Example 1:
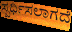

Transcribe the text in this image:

ಸ್ಪರ್ಧಿಸಲಾಗದೆ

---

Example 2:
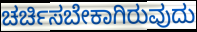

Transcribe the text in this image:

ಚರ್ಚಿಸಬೇಕಾಗಿರುವುದು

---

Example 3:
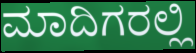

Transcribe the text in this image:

ಮಾದಿಗರಲ್ಲಿ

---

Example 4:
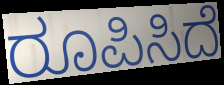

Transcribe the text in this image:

ರೂಪಿಸಿದೆ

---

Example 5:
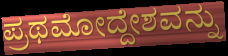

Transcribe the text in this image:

ಪ್ರಥಮೋದ್ದೇಶವನ್ನು